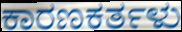
ಕಾರಣಕರ್ತಳು